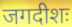
जगदीशः